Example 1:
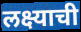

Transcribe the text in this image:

लक्ष्याची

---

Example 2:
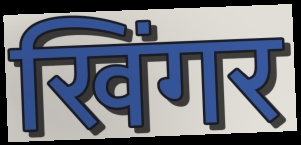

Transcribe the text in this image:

खिंगर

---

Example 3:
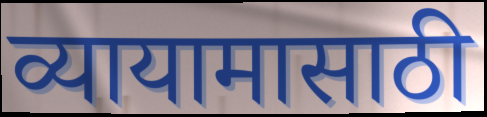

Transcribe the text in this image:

व्यायामासाठी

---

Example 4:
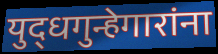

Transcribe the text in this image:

युद्धगुन्हेगारांना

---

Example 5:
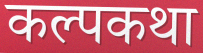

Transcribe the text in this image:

कल्पकथा